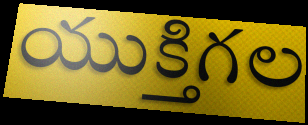
యుక్తిగల